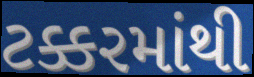
ટક્કરમાંથી